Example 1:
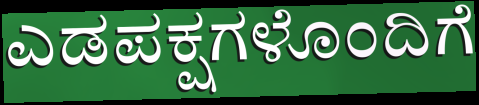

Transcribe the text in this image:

ಎಡಪಕ್ಷಗಳೊಂದಿಗೆ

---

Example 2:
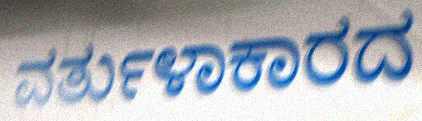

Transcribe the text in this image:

ವರ್ತುಳಾಕಾರದ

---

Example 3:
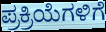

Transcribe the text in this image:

ಪ್ರಕ್ರಿಯೆಗಳಿಗೆ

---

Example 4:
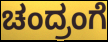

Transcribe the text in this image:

ಚಂದ್ರಂಗೆ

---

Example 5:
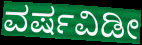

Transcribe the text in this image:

ವರ್ಷವಿಡೀ